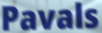
Pavals